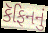
કૅફિનનું